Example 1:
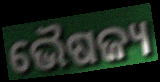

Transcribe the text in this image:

ଭୈଷଜ୍ୟ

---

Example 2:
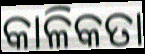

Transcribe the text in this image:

କାଳିକତା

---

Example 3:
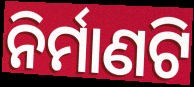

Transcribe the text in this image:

ନିର୍ମାଣଟି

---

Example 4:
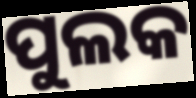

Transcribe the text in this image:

ପୁଲକ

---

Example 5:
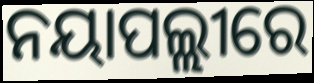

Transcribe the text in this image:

ନୟାପଲ୍ଲୀରେ